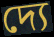
দ্যে